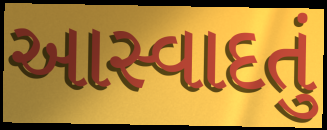
આસ્વાદતું